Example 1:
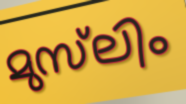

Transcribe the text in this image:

മുസ്‌ലിം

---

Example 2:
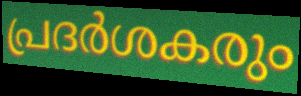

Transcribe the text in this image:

പ്രദർശകരും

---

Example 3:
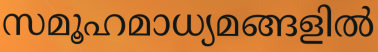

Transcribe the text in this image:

സമൂഹമാധ്യമങ്ങളിൽ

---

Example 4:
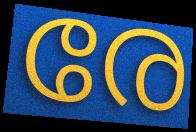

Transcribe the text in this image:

രേ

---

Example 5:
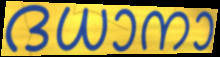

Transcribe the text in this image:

ദധാനാ